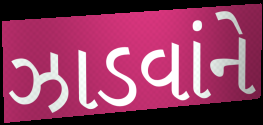
ઝાડવાંને